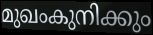
മുഖംകുനിക്കും